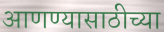
आणण्यासाठीच्या